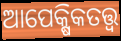
ଆପେକ୍ଷିକତତ୍ତ୍ୱ